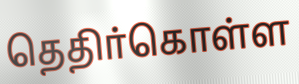
தெதிர்கொள்ள